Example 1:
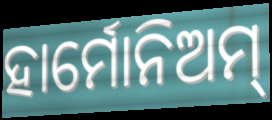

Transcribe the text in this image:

ହାର୍ମୋନିଅମ୍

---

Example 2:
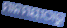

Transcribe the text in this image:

ମାନମୟୀଠାରୁ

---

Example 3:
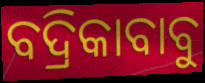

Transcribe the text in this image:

ବଦ୍ରିକାବାବୁ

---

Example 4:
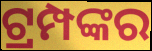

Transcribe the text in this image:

ଟ୍ରମ୍ପଙ୍କର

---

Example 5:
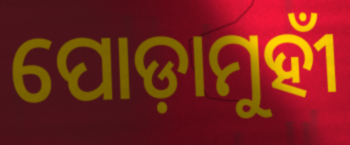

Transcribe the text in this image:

ପୋଡ଼ାମୁହୀଁ